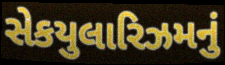
સેકયુલારિઝમનું